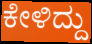
ಕೇಳಿದ್ದು